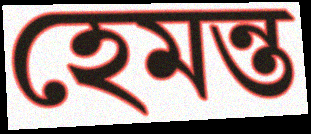
হেমন্ত